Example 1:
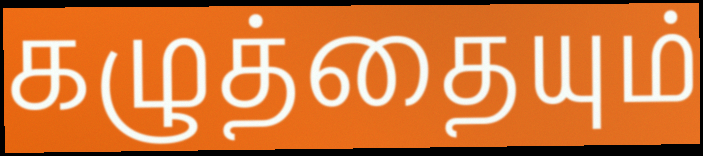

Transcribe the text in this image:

கழுத்தையும்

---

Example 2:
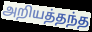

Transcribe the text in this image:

அறியத்தந்த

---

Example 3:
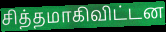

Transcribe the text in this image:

சித்தமாகிவிட்டன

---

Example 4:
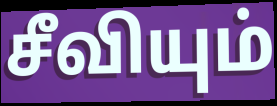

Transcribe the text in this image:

சீவியும்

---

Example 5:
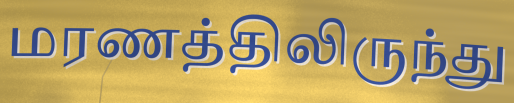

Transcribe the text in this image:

மரணத்திலிருந்து